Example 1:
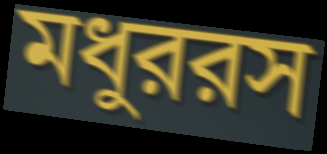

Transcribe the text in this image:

মধুররস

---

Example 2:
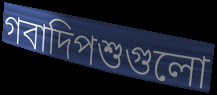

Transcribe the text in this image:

গবাদিপশুগুলো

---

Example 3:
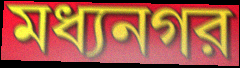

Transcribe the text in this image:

মধ্যনগর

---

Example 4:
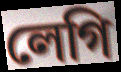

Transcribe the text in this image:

লেগি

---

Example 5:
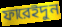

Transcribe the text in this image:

ফারেইদুন